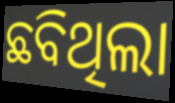
ଛବିଥିଲା